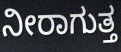
ನೀರಾಗುತ್ತ